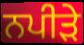
ਨਪੀੜੇ